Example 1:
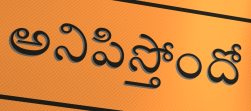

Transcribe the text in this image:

అనిపిస్తోందో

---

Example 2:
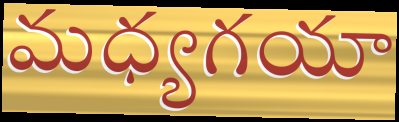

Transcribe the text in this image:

మధ్యగయా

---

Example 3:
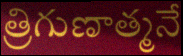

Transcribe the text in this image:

త్రిగుణాత్మనే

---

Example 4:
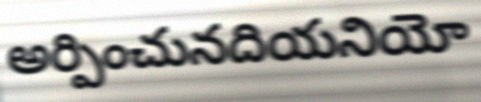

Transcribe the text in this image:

అర్పించునదియనియో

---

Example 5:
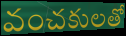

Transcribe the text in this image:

వంచకులతో